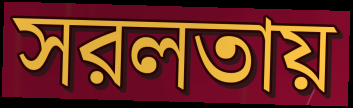
সরলতায়